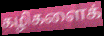
கழிகளைக்